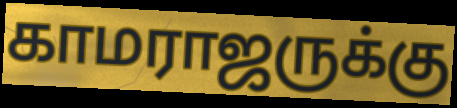
காமராஜருக்கு